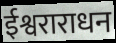
ईश्वराराधन